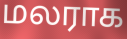
மலராக